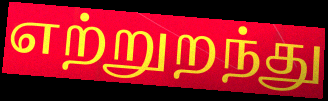
எற்றுறந்து